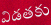
విడతకు